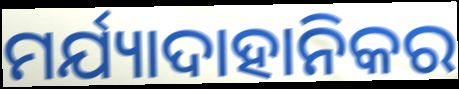
ମର୍ଯ୍ୟାଦାହାନିକର